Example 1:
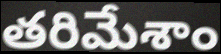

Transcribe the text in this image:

తరిమేశాం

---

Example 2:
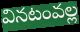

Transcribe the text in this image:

వినటంవల్ల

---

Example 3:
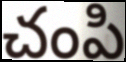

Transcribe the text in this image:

చంపి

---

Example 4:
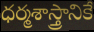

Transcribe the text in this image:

ధర్మశాస్త్రానికే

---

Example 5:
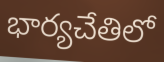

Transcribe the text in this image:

భార్యచేతిలో